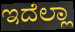
ಇದೆಲ್ಲಾ